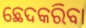
ଛେଦକରିବା